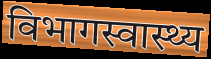
विभागस्वास्थ्य